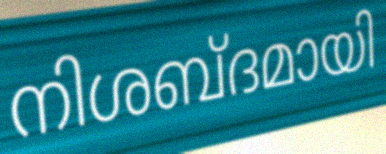
നിശബ്ദമായി